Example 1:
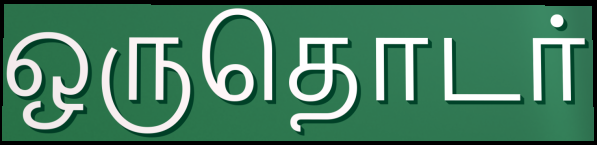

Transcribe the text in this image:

ஒருதொடர்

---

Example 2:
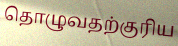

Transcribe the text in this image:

தொழுவதற்குரிய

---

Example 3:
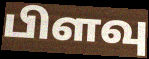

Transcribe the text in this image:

பிளவு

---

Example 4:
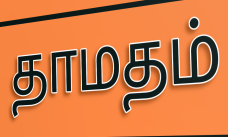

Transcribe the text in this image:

தாமதம்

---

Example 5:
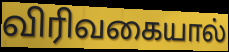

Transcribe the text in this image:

விரிவகையால்